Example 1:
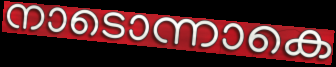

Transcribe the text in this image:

നാടൊന്നാകെ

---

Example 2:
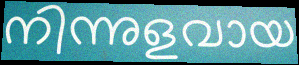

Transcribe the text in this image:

നിന്നുളവായ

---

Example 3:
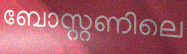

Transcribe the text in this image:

ബോസ്റ്റണിലെ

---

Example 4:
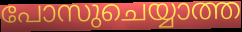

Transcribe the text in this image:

പോസുചെയ്യാത്ത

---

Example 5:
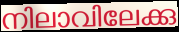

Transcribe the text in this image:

നിലാവിലേക്കു